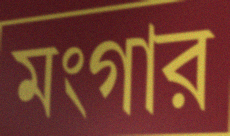
মংগার